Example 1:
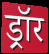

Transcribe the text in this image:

ड्रॉर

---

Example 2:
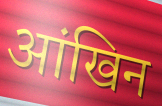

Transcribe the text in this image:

आंखिन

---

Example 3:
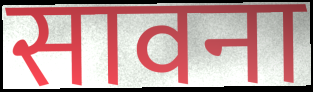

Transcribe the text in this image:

सावना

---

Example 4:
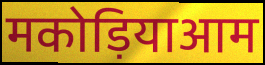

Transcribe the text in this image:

मकोड़ियाआम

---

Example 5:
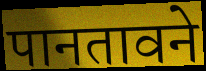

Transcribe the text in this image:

पानतावने